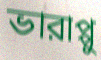
ভারাপ্পু